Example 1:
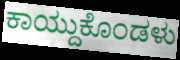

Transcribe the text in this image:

ಕಾಯ್ದುಕೊಂಡಳು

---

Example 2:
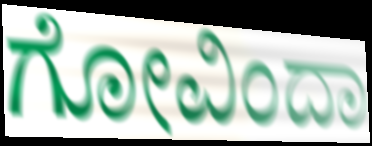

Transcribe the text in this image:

ಗೋವಿಂದಾ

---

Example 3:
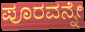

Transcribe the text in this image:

ಪೂರವನ್ನೇ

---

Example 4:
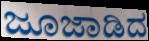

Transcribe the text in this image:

ಜೂಜಾಡಿದ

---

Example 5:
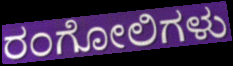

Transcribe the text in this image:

ರಂಗೋಲಿಗಳು